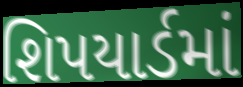
શિપયાર્ડમાં